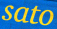
sato